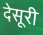
देसूरी